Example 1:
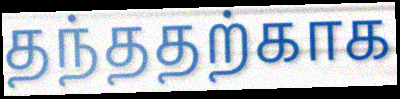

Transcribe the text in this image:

தந்ததற்காக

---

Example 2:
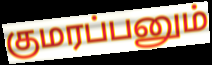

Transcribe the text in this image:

குமரப்பனும்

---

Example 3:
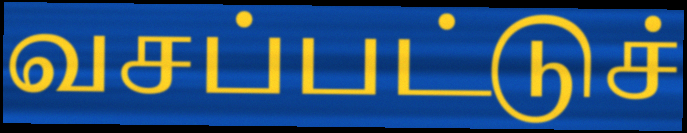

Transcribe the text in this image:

வசப்பட்டுச்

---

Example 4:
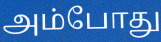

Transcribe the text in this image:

அம்போது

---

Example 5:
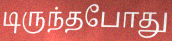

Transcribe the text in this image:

டிருந்தபோது